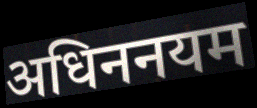
अधिननयम